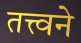
तत्त्वने